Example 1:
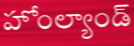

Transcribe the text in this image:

హోంల్యాండ్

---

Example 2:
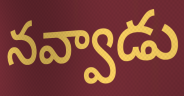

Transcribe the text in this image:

నవ్వాడు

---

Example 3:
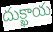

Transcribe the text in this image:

దుక్ఖాయ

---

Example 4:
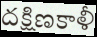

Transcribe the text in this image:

దక్షిణకాళీ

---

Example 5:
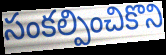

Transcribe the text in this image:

సంకల్పించికొని